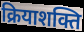
क्रियाशक्ति